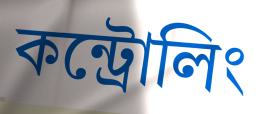
কন্ট্রোলিং